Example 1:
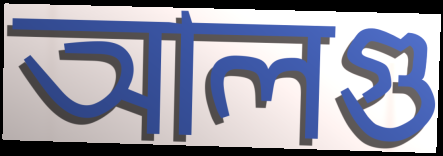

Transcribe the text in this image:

আলগু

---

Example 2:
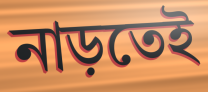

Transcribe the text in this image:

নাড়তেই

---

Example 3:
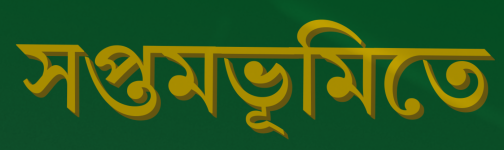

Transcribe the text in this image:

সপ্তমভূমিতে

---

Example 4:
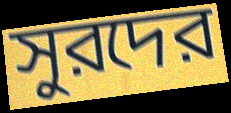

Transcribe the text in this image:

সুরদের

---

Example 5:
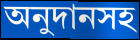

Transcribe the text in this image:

অনুদানসহ